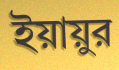
ইয়ায়ুর